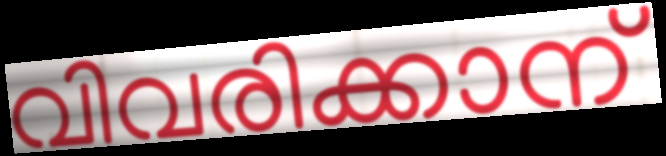
വിവരിക്കാന്